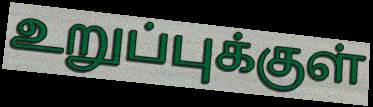
உறுப்புக்குள்